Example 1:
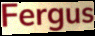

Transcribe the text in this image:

Fergus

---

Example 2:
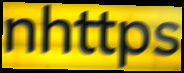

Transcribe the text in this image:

nhttps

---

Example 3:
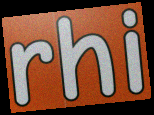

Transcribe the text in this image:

rhi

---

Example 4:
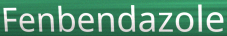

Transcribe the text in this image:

Fenbendazole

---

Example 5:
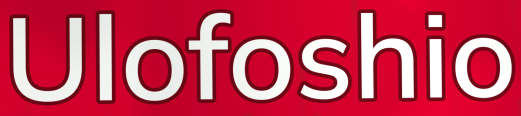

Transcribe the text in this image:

Ulofoshio